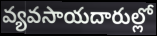
వ్యవసాయదారుల్లో